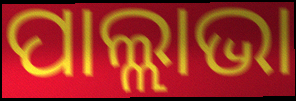
ପାଲ୍ଲାଭା